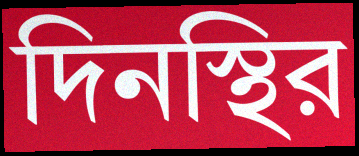
দিনস্থির